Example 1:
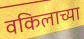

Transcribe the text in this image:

वकिलाच्या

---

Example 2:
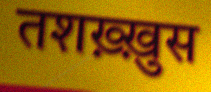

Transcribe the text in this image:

तशख़्ख़ुस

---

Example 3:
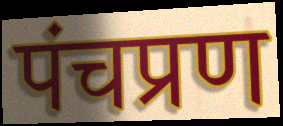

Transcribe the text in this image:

पंचप्रण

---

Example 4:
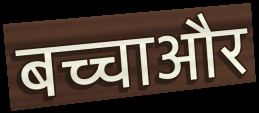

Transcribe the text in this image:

बच्चाऔर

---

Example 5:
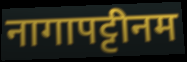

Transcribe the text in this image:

नागापट्टीनम